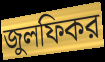
জুলফিকর